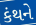
કંથને